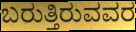
ಬರುತ್ತಿರುವವರ